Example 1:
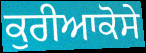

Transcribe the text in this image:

ਕੁਰੀਆਕੋਸੇ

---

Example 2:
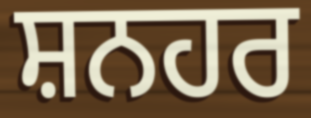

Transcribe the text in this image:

ਸ਼ਨਹਰ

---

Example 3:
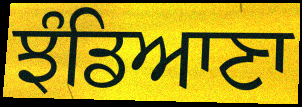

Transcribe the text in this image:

ਝੰਡਿਆਣਾ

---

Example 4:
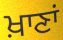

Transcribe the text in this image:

ਖ਼ਾਣਾਂ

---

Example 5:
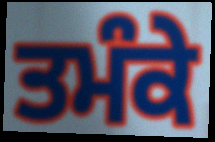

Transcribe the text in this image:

ਤਮੰਕੇ